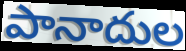
పానాదుల